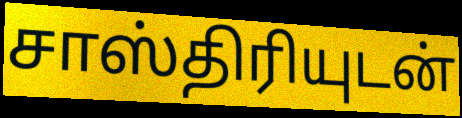
சாஸ்திரியுடன்